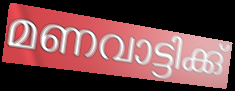
മണവാട്ടിക്കു്